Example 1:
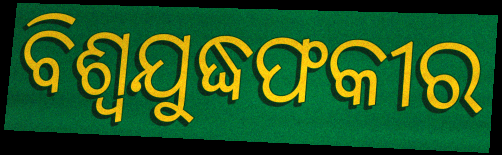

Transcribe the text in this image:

ବିଶ୍ୱଯୁଦ୍ଧଫକୀର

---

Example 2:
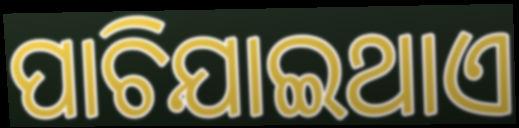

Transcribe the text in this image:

ପାଚିଯାଇଥାଏ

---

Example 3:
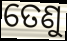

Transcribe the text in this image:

ତେଣୁ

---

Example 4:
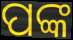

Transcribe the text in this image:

ପଙ୍କ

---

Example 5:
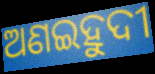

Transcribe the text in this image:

ଅଣଇହୁଦୀ